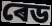
ৰেড